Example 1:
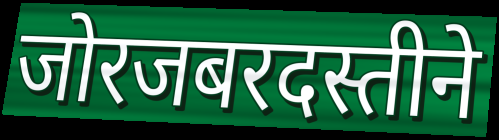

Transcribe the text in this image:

जोरजबरदस्तीने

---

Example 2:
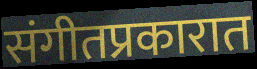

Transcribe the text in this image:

संगीतप्रकारात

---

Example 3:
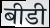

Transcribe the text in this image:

बीडी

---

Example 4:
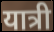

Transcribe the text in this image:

यात्री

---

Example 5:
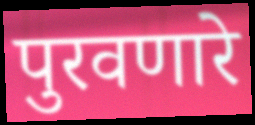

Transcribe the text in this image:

पुरवणारे